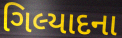
ગિલ્યાદના